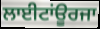
ਲਾਈਟਾਂਊਰਜਾ